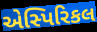
એસ્પિરિકલ